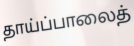
தாய்ப்பாலைத்